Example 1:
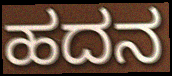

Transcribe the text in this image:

ಹದನ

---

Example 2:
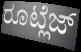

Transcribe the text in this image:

ರೂಟ್ಲೆಜ್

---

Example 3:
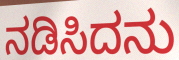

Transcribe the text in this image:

ನಡಿಸಿದನು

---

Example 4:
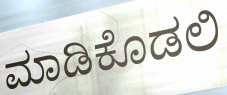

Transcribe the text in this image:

ಮಾಡಿಕೊಡಲಿ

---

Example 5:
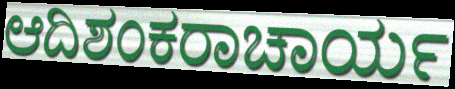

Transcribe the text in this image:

ಆದಿಶಂಕರಾಚಾರ್ಯ